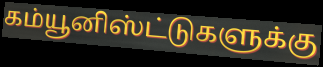
கம்யூனிஸ்ட்டுகளுக்கு